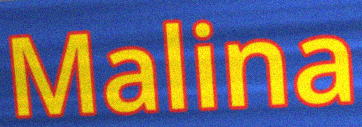
Malina